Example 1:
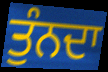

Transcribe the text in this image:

ਤੁੰਨਦਾ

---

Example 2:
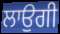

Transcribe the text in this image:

ਲਾਉਗੀ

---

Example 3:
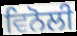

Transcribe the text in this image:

ਵਿਨੋਲੀ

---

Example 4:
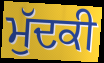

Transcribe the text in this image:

ਮੁੱਦਕੀ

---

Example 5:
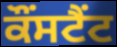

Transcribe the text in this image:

ਕੌਂਸਟੈਂਟ